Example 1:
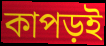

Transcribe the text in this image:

কাপড়ই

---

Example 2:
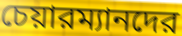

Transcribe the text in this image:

চেয়ারম্যানদের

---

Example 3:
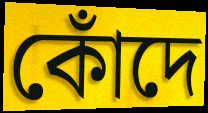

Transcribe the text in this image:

কোঁদে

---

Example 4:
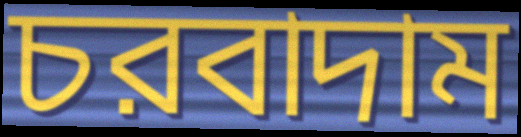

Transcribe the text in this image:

চরবাদাম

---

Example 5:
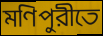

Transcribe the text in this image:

মণিপুরীতে